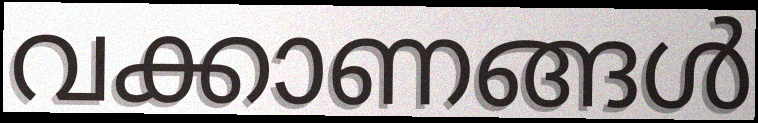
വക്കാണങ്ങൾ